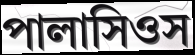
পালাসিওস